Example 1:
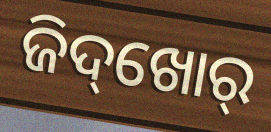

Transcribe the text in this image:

ଜିଦ୍‌ଖୋର୍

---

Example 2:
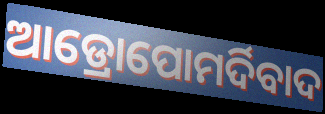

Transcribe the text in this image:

ଆଡ୍ରୋପୋମର୍ଦିବାଦ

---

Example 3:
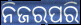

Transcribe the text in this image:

ନିଜରପରି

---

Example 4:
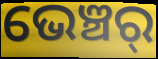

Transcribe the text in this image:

ଭେଞ୍ଚର୍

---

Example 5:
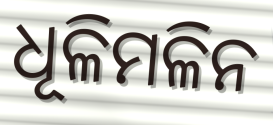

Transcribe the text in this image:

ଧୂଳିମଳିନ